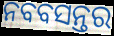
ନବବସନ୍ତର